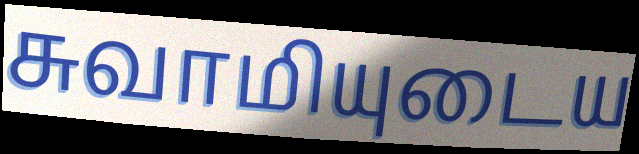
சுவாமியுடைய